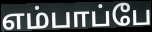
எம்பாப்பே